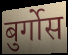
बुर्गोस